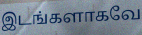
இடங்களாகவே